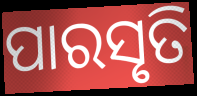
ପାରସୃତି